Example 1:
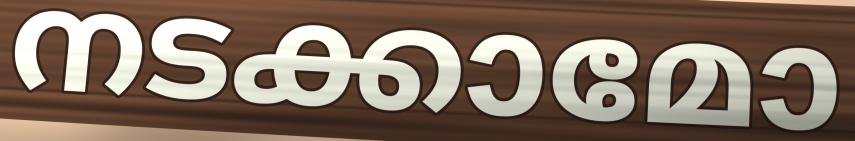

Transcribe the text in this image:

നടക്കാമോ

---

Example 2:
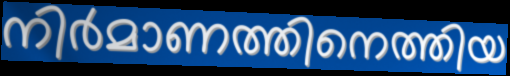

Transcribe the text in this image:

നിർമാണത്തിനെത്തിയ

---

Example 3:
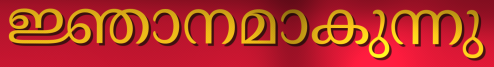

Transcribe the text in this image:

ജ്ഞാനമാകുന്നു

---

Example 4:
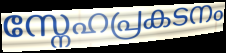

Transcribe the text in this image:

സ്നേഹപ്രകടനം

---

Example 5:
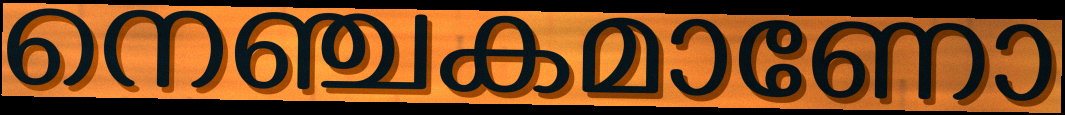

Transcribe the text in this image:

നെഞ്ചകമാണോ